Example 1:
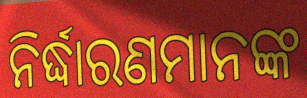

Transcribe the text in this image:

ନିର୍ଦ୍ଧାରଣମାନଙ୍କ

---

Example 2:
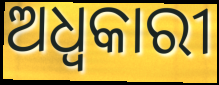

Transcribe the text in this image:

ଅଧ୍ବକାରୀ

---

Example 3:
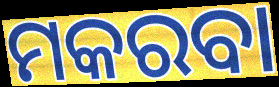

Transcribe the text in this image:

ମକରବା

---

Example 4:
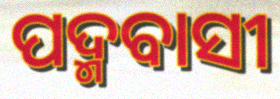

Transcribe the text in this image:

ପଦ୍ମବାସୀ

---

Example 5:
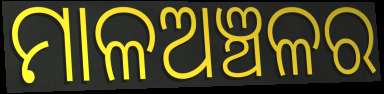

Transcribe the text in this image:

ମାଳଅଞ୍ଚଳର